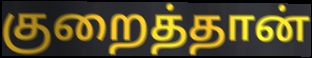
குறைத்தான்